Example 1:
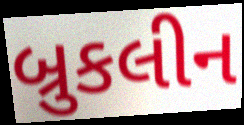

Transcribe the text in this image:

બ્રુકલીન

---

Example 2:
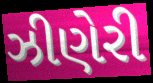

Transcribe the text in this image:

ઝીણેરી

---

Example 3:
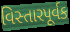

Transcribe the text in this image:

વિસ્તારપૂર્વક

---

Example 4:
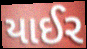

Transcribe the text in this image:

યાઈર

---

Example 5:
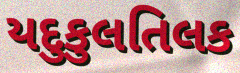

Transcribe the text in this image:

યદુકુલતિલક